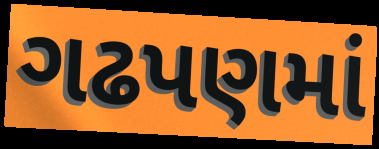
ગઢપણમાં